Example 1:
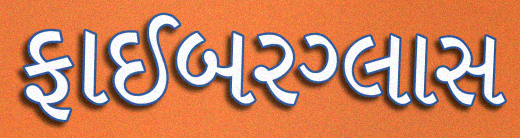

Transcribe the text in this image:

ફાઈબરગ્લાસ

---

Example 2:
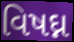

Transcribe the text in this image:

વિષઘ્ન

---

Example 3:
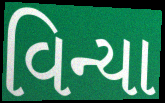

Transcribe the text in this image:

વિન્યા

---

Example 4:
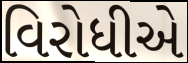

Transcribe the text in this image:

વિરોધીએ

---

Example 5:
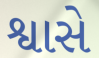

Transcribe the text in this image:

શ્વાસે